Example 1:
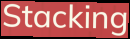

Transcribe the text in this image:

Stacking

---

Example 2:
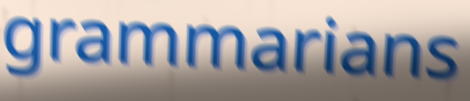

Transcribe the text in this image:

grammarians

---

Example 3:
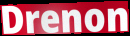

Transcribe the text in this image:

Drenon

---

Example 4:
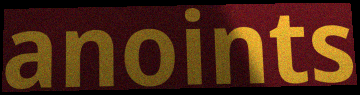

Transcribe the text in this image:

anoints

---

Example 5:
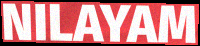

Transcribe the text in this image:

NILAYAM